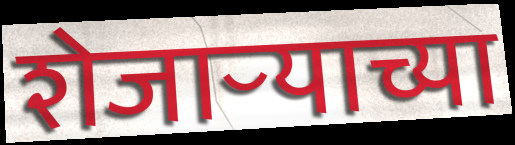
शेजाऱ्याच्या